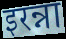
इरन्ना